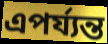
এপর্য্যন্ত